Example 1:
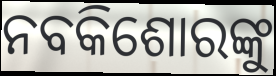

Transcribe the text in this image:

ନବକିଶୋରଙ୍କୁ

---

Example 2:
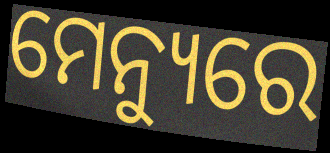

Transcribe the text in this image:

ମେନ୍ୟୁରେ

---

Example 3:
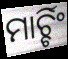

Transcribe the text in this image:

ମାର୍ଚ୍ଚିଂ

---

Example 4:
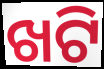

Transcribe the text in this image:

ଖଟି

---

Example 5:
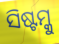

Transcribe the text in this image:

ସିଷ୍ଟମ୍କୁ